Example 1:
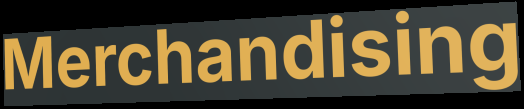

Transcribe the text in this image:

Merchandising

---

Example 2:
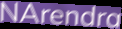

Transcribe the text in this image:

NArendra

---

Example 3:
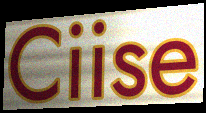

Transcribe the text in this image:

Ciise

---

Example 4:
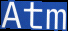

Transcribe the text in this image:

Atm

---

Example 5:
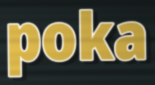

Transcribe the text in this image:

poka